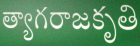
త్యాగరాజకృతి